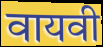
वायवी